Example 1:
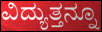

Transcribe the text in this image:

ವಿದ್ಯುತ್ತನ್ನೂ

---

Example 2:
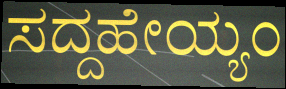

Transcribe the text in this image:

ಸದ್ದಹೇಯ್ಯಂ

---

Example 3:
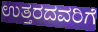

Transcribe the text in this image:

ಉತ್ತರದವರಿಗೆ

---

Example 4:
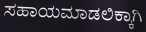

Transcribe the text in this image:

ಸಹಾಯಮಾಡಲಿಕ್ಕಾಗಿ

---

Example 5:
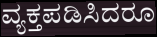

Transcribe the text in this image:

ವ್ಯಕ್ತಪಡಿಸಿದರೂ